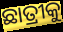
ଛାତ୍ରୀକୁ